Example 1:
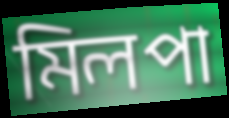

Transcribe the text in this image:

মিলপা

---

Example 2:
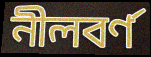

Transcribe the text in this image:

নীলবর্ণ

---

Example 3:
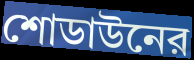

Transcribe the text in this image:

শোডাউনের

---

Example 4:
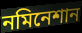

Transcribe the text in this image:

নমিনেশান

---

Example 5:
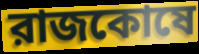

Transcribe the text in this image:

রাজকোষে